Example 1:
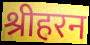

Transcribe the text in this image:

श्रीहरन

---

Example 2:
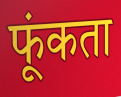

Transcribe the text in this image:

फूंकता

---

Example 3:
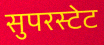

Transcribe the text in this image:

सुपरस्टेट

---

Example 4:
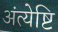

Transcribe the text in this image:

अंत्येष्टि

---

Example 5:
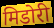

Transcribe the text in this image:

मिडोरी